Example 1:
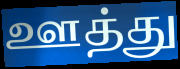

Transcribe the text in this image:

ஊத்து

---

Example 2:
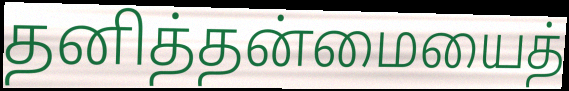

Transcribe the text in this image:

தனித்தன்மையைத்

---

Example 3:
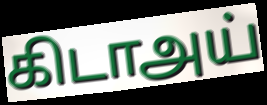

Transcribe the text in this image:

கிடாஅய்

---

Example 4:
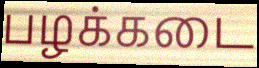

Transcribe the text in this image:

பழக்கடை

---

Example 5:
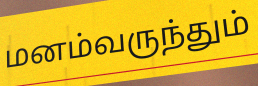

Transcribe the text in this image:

மனம்வருந்தும்